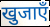
खुजाएँ